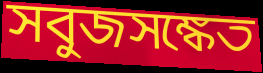
সবুজসঙ্কেত